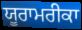
ਯੂਰਾਮਰੀਕਾ